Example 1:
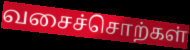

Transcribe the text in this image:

வசைச்சொற்கள்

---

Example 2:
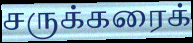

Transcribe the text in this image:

சருக்கரைக்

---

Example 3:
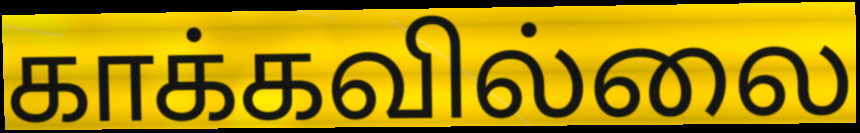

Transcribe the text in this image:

காக்கவில்லை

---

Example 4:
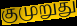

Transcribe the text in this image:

குமுறுது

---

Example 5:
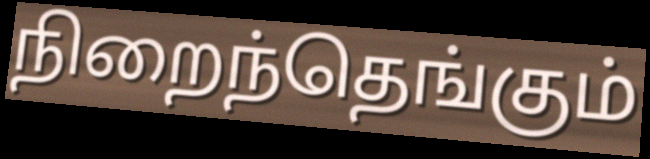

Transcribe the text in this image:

நிறைந்தெங்கும்